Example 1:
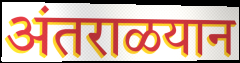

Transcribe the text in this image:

अंतराळयान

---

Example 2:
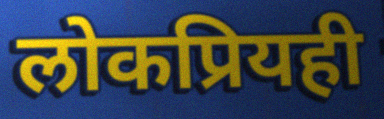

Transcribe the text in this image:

लोकप्रियही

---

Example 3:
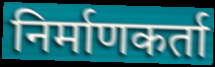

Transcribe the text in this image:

निर्माणकर्ता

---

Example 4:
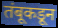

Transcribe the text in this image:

तंबूकडून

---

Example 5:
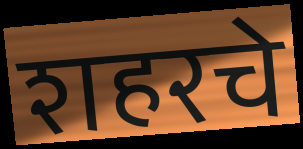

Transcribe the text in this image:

शहरचे